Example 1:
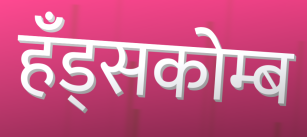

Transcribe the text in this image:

हँड्सकोम्ब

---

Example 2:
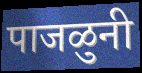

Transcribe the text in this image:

पाजळुनी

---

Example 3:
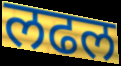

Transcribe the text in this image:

लढल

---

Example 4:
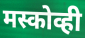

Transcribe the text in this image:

मस्कोव्ही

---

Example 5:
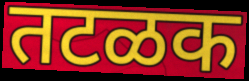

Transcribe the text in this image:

तटळक